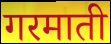
गरमाती